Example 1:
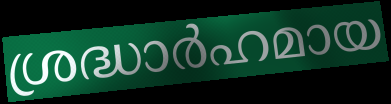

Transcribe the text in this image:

ശ്രദ്ധാർഹമായ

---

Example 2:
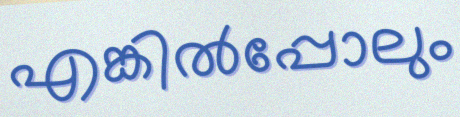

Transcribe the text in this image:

എങ്കിൽപ്പോലും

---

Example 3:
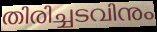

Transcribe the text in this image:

തിരിച്ചടവിനും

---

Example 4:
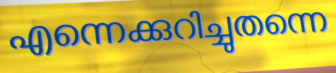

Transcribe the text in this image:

എന്നെക്കുറിച്ചുതന്നെ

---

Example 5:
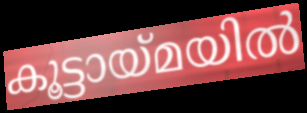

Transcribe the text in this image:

കൂട്ടായ്മയിൽ